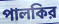
পালকির